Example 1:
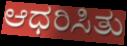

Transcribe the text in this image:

ಆಧರಿಸಿತು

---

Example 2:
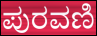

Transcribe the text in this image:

ಪುರವಣಿ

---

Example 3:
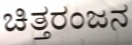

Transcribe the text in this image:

ಚಿತ್ತರಂಜನ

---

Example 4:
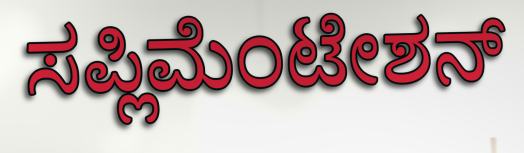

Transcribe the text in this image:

ಸಪ್ಲಿಮೆಂಟೇಶನ್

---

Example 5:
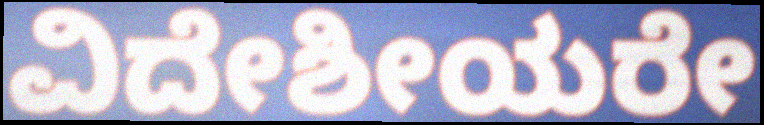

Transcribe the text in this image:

ವಿದೇಶೀಯರೇ